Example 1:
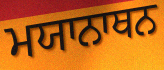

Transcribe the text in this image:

ਮਯਾਨਾਥਨ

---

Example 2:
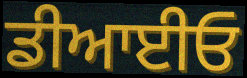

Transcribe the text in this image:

ਡੀਆਈਓ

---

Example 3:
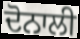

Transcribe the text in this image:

ਦੋਨਾਲੀ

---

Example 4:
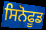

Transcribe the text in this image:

ਸਿਨੋਫੂਡ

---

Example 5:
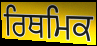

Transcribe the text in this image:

ਰਿਥਮਿਕ